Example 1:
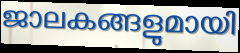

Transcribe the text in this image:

ജാലകങ്ങളുമായി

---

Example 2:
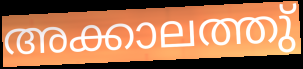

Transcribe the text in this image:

അക്കാലത്തു്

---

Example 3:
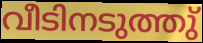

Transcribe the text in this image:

വീടിനടുത്തു്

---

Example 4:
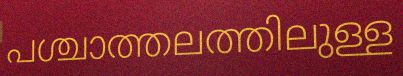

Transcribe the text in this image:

പശ്ചാത്തലത്തിലുള്ള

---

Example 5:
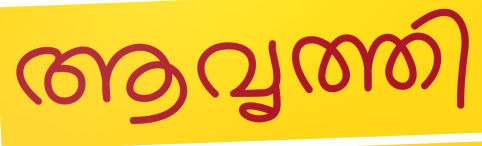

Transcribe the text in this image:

ആവൃത്തി